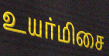
உயர்மிசை